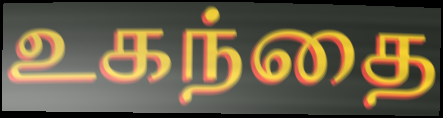
உகந்தை